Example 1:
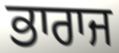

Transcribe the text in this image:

ਭਾਰਾਜ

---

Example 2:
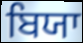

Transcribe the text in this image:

ਬਿਯਾ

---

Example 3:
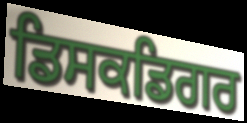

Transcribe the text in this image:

ਡਿਸਕਡਿਗਰ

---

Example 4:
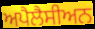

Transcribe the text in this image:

ਅਪੈਲੈਸੀਅਨ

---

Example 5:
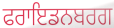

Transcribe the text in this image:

ਫਰਾਇਡਨਬਰਗ